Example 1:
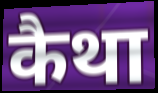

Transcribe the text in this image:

कैथा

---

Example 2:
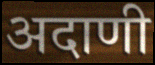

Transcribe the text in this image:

अदाणी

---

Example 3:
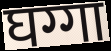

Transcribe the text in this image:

घग्गा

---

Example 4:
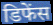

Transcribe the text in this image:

डिफेंस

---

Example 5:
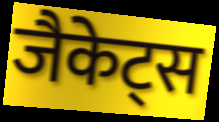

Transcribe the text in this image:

जैकेट्स